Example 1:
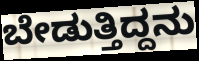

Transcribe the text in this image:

ಬೇಡುತ್ತಿದ್ದನು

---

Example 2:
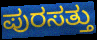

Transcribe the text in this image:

ಪುರಸತ್ತು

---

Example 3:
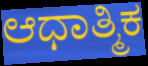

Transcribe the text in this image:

ಆಧಾತ್ಮಿಕ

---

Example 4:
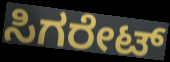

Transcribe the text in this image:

ಸಿಗರೇಟ್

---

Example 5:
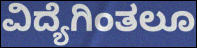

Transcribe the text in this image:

ವಿದ್ಯೆಗಿಂತಲೂ